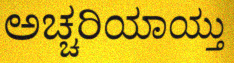
ಅಚ್ಚರಿಯಾಯ್ತು